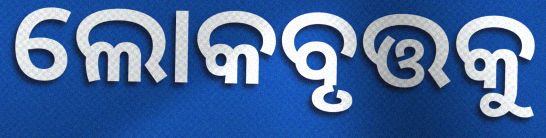
ଲୋକବୃତ୍ତକୁ